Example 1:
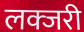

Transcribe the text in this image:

लक्‍जरी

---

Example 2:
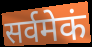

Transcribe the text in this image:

सर्वमेकं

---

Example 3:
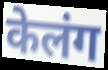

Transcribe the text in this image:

केलंग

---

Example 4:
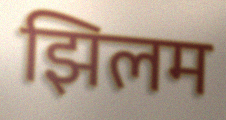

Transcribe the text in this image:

झिलम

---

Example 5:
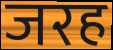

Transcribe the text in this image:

जरह